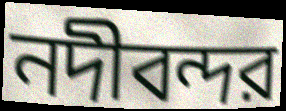
নদীবন্দর